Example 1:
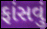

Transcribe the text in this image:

ફાંસવું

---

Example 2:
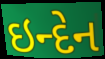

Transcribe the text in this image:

ઇન્દેન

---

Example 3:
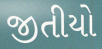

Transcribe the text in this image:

જીતીયો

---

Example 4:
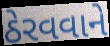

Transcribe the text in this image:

ઠેરવવાને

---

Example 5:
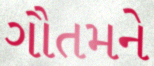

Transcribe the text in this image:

ગૌતમને